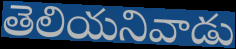
తెలియనివాడు